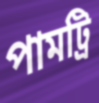
পামট্রি